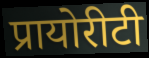
प्रायोरीटी